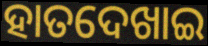
ହାତଦେଖାଇ